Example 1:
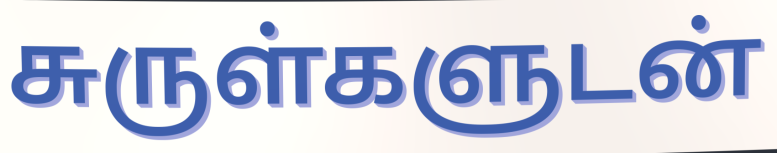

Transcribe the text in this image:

சுருள்களுடன்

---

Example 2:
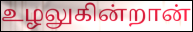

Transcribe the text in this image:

உழலுகின்றான்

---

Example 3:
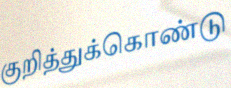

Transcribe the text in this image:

குறித்துக்கொண்டு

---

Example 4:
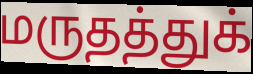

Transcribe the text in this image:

மருதத்துக்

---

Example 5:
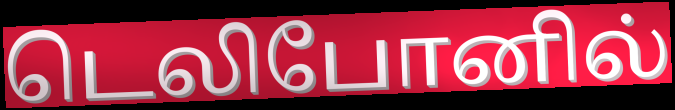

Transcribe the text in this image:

டெலிபோனில்